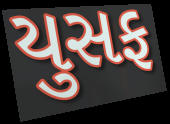
યુસફ